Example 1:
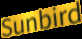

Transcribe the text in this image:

Sunbird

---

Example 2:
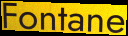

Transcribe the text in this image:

Fontane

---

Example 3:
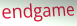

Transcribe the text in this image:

endgame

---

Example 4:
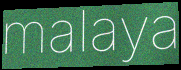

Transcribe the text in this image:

malaya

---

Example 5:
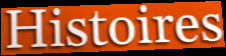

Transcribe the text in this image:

Histoires